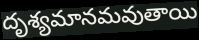
దృశ్యమానమవుతాయి